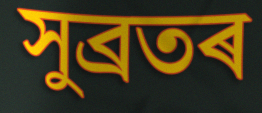
সুব্ৰতৰ